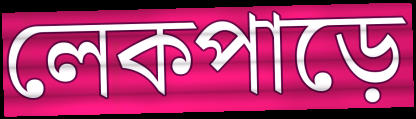
লেকপাড়ে